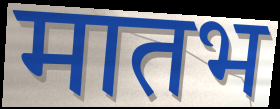
मातभ